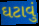
ઘટાવું